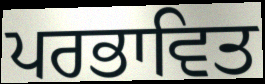
ਪਰਭਾਵਿਤ